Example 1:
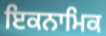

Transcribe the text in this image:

ਇਕਨਾਮਿਕ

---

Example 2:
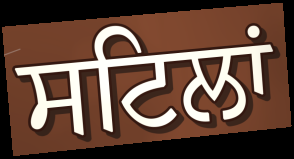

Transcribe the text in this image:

ਸਟਿਲਾਂ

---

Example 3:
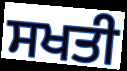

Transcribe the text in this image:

ਸਖਤੀ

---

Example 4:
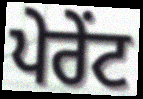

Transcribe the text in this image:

ਪੇਰੇਂਟ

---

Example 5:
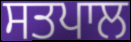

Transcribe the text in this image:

ਸਤਪਾਲ